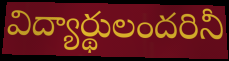
విద్యార్థులందరినీ